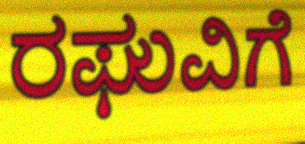
ರಘುವಿಗೆ